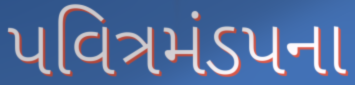
પવિત્રમંડપના